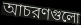
আচরণগুলো